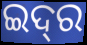
ଇଦ୍‍ର